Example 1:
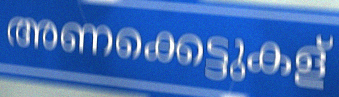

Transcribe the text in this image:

അണക്കെട്ടുകള്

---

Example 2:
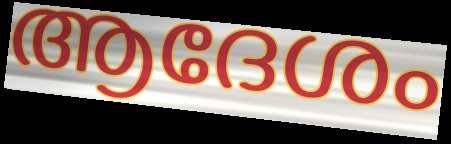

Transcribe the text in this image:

ആദേശം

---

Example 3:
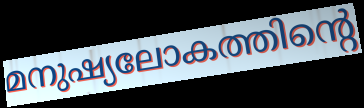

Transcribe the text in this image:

മനുഷ്യലോകത്തിന്റെ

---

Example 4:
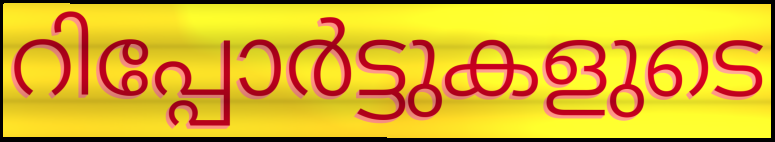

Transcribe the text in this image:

റിപ്പോർട്ടുകളുടെ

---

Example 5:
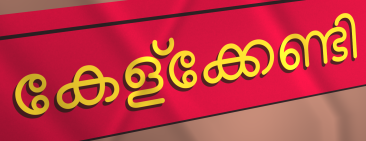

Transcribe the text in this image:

കേള്ക്കേണ്ടി